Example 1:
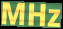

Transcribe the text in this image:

MHz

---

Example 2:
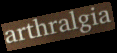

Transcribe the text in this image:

arthralgia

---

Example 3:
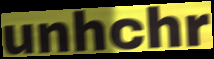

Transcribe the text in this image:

unhchr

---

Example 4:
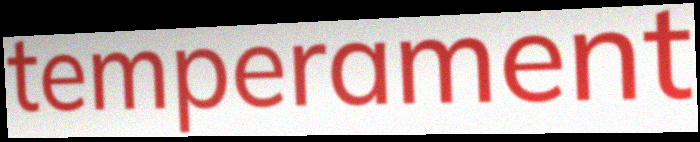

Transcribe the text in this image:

temperament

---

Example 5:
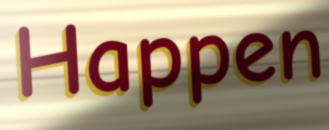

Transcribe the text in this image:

Happen